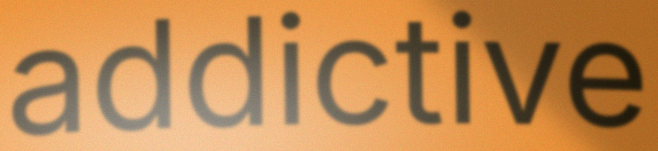
addictive